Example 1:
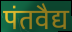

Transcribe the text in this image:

पंतवैद्य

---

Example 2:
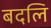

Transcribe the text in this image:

बदलि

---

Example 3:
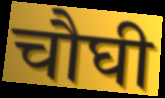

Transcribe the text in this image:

चौघी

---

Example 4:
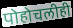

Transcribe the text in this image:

पोहोचलीही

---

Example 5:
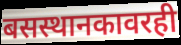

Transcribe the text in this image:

बसस्थानकावरही